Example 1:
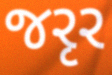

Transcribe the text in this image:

જરૃર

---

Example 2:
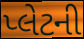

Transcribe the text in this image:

પ્લેટની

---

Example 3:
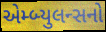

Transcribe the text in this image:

એમ્બ્યુલન્સનો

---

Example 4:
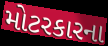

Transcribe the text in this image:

મોટરકારના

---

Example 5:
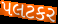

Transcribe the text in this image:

પલટકર